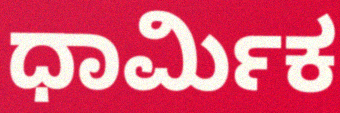
ಧಾರ್ಮಿಕ